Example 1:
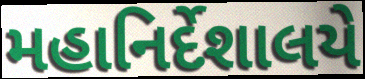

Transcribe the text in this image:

મહાનિર્દેશાલયે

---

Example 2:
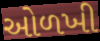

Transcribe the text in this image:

ઓળખી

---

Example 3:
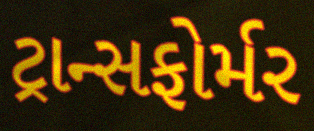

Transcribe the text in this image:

ટ્રાન્સફોર્મર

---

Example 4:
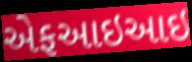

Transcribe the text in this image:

એફઆઇઆઇ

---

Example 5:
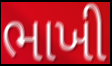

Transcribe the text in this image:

ભાખી